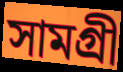
সামগ্রী